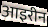
आइरीन